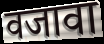
वजावा